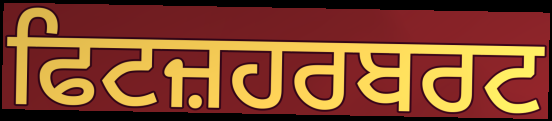
ਫਿਟਜ਼ਹਰਬਰਟ